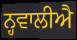
ਨ੍ਹਵਾਲੀਐ